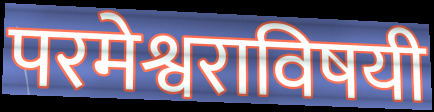
परमेश्वराविषयी